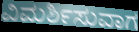
ವಿಮರ್ಶಿಸುವಾಗ